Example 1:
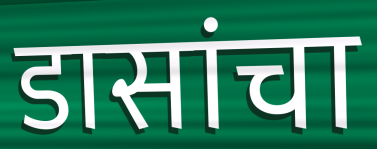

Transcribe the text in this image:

डासांचा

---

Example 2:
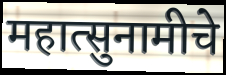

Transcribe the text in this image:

महात्सुनामीचे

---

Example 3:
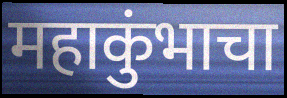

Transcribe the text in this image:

महाकुंभाचा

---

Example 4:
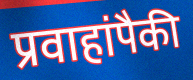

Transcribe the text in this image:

प्रवाहांपैकी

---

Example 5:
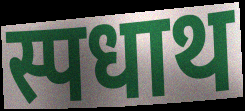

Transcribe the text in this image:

स्पधाथ